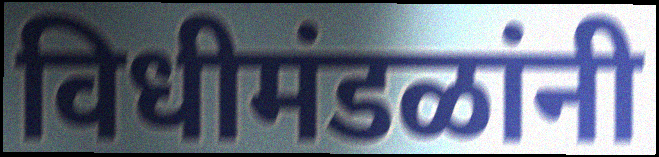
विधीमंडळांनी